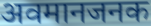
अवमानजनक